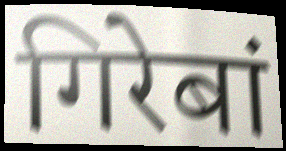
गिरेबां